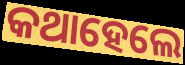
କଥାହେଲେ